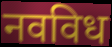
नवविध